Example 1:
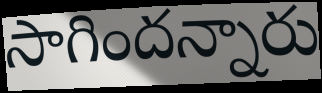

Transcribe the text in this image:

సాగిందన్నారు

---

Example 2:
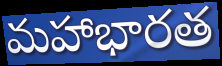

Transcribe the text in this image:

మహాభారత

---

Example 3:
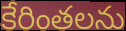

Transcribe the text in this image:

కేరింతలను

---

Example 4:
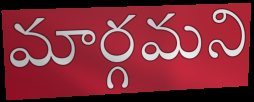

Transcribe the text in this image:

మార్గమని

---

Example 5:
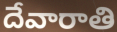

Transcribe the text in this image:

దేవారాతి